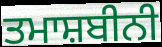
ਤਮਾਸ਼ਬੀਨੀ